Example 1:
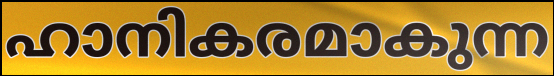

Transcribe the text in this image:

ഹാനികരമാകുന്ന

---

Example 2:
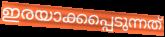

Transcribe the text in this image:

ഇരയാക്കപ്പെടുന്നത്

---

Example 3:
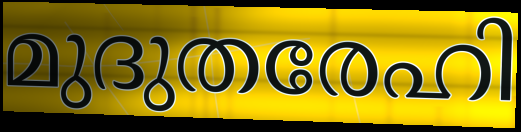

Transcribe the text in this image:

മുദുതരേഹി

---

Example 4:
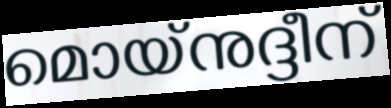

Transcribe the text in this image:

മൊയ്നുദ്ദീന്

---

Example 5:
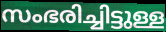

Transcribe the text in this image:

സംഭരിച്ചിട്ടുള്ള